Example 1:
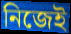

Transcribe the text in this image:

নিজেই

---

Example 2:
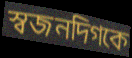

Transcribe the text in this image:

স্বজনদিগকে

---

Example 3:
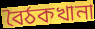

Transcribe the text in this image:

বৈঠকখানা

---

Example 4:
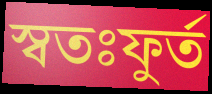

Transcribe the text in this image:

স্বতঃফুর্ত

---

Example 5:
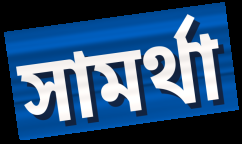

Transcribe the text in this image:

সামর্থা